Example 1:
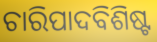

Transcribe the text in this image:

ଚାରିପାଦବିଶିଷ୍ଟ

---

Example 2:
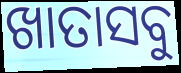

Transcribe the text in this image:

ଖାତାସବୁ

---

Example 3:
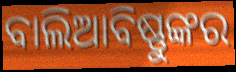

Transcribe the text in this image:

ବାଲିଆବିଷ୍ଣୁଙ୍କର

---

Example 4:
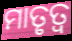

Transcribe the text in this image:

ମାତୃତ୍ୱ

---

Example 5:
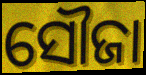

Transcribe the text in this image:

ସୌଜା